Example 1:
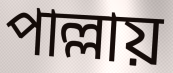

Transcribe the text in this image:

পাল্লায়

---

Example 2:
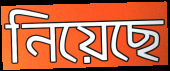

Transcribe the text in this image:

নিয়েছে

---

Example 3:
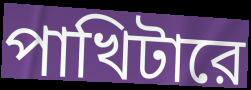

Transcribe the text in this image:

পাখিটারে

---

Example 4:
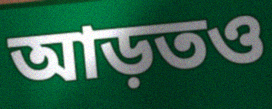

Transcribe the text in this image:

আড়তও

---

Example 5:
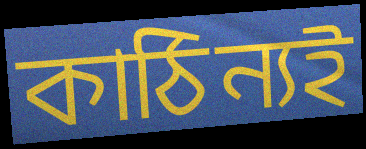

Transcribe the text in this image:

কাঠিন্যই